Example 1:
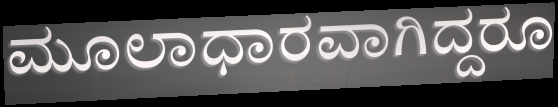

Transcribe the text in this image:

ಮೂಲಾಧಾರವಾಗಿದ್ದರೂ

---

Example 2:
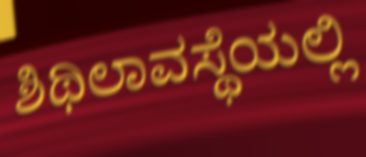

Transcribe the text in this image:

ಶಿಥಿಲಾವಸ್ಥೆಯಲ್ಲಿ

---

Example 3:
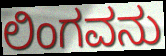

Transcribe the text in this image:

ಲಿಂಗವನು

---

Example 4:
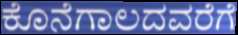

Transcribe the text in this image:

ಕೊನೆಗಾಲದವರೆಗೆ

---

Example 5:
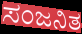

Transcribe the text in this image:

ಸಂಜನಿತ